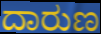
ದಾರುಣ